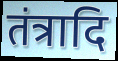
तंत्रादि